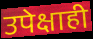
उपेक्षाही